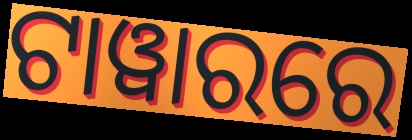
ଟାୱାରରେ